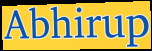
Abhirup